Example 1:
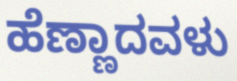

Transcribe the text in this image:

ಹೆಣ್ಣಾದವಳು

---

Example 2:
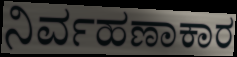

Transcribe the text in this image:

ನಿರ್ವಹಣಾಕಾರ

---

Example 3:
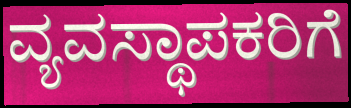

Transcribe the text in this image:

ವ್ಯವಸ್ಥಾಪಕರಿಗೆ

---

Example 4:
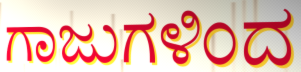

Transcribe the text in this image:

ಗಾಜುಗಳಿಂದ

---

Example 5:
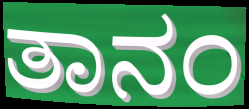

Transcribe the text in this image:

ತಾನಂ